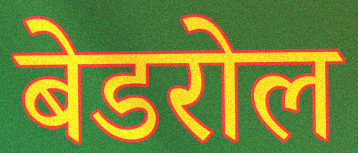
बेडरोल